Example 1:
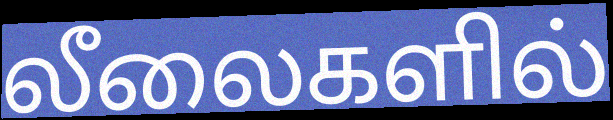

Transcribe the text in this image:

லீலைகளில்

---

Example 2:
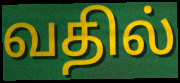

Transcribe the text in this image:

வதில்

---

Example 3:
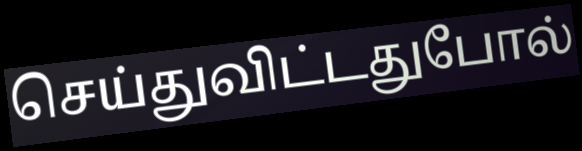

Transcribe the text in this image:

செய்துவிட்டதுபோல்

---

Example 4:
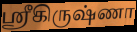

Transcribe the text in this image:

ஸ்ரீகிருஷ்ணா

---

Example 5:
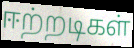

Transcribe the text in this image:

ஈற்றடிகள்